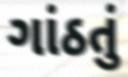
ગાંઠતું